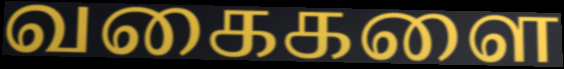
வகைகளை